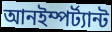
আনইম্পর্ট্যান্ট